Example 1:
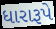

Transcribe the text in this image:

ધારારૂપે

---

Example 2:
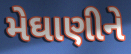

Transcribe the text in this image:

મેઘાણીને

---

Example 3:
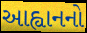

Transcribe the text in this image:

આહ્વાનનો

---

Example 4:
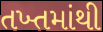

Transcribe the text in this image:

તખ્તમાંથી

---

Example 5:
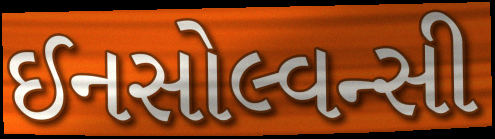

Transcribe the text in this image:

ઈનસોલ્વન્સી